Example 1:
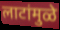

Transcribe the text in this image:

लाटांमुळे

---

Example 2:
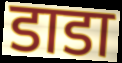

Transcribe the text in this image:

डाडा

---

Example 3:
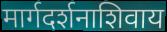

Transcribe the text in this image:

मार्गदर्शनाशिवाय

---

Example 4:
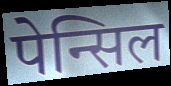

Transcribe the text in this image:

पेन्सिल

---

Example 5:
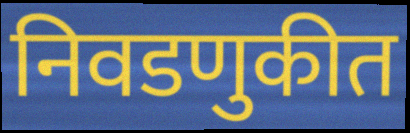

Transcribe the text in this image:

निवडणुकीत